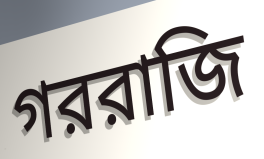
গররাজি